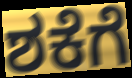
ಶಕೆಗೆ